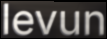
levun